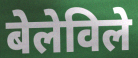
बेलेविले